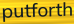
putforth